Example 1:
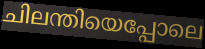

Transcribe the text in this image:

ചിലന്തിയെപ്പോലെ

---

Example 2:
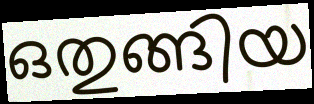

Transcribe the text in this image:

ഒതുങ്ങിയ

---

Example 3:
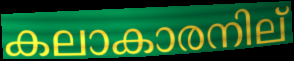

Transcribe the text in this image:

കലാകാരനില്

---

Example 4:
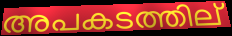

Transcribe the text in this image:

അപകടത്തില്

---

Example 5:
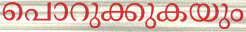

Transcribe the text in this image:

പൊറുക്കുകയും